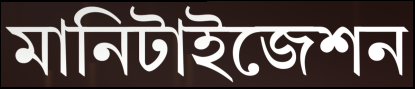
মানিটাইজেশন